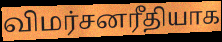
விமர்சனரீதியாக